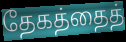
தேகத்தைத்